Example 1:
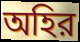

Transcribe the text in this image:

অহির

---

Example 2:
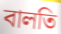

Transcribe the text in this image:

বালতি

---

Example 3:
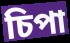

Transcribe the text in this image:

চিপা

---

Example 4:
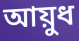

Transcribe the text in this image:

আয়ুধ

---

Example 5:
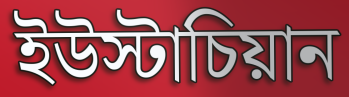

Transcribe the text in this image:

ইউস্টাচিয়ান